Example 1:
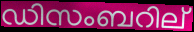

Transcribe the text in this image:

ഡിസംബറില്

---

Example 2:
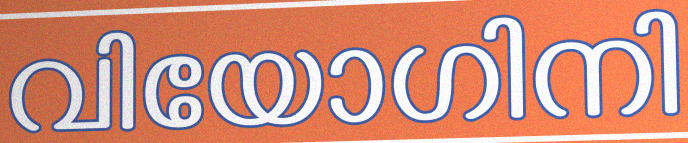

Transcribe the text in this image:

വിയോഗിനി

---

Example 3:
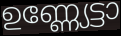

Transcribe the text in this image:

ഉണ്ണ്യേട്ടാ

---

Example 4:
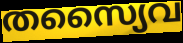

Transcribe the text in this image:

തസ്യൈവ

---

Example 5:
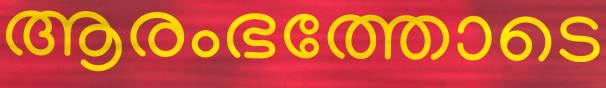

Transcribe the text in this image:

ആരംഭത്തോടെ